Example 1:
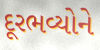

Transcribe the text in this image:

દૂરભવ્યોને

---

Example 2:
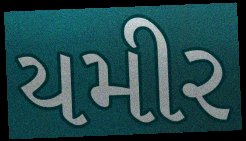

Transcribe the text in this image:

યમીર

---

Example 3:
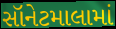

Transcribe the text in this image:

સૉનેટમાલામાં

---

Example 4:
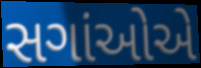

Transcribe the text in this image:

સગાંઓએ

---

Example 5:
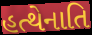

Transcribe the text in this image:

હત્થેનાતિ